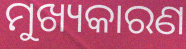
ମୁଖ୍ୟକାରଣ